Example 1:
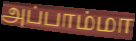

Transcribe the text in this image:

அப்பாம்மா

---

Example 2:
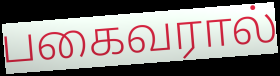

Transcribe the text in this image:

பகைவரால்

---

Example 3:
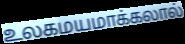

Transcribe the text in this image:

உலகமயமாக்கலால்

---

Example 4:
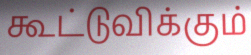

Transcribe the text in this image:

கூட்டுவிக்கும்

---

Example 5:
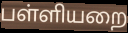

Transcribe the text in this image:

பள்ளியறை